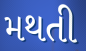
મથતી